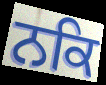
ਨਕਿ